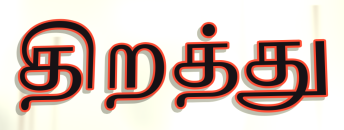
திறத்து